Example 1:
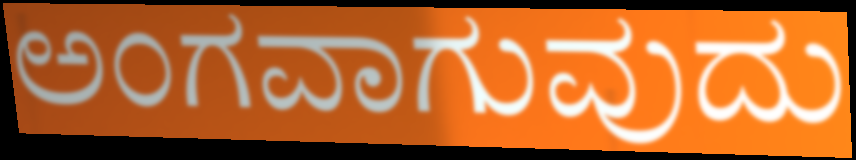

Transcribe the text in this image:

ಅಂಗವಾಗುವುದು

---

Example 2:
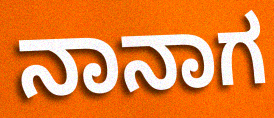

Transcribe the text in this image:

ನಾನಾಗ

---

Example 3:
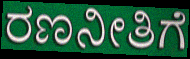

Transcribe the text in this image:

ರಣನೀತಿಗೆ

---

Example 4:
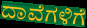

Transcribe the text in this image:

ದಾವೆಗಳಿಗೆ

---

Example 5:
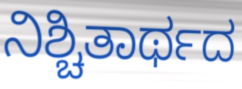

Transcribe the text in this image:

ನಿಶ್ಚಿತಾರ್ಥದ